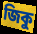
জিকু